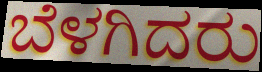
ಬೆಳಗಿದರು